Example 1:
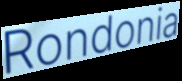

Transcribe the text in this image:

Rondonia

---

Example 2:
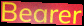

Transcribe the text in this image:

Bearer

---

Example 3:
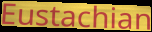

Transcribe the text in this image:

Eustachian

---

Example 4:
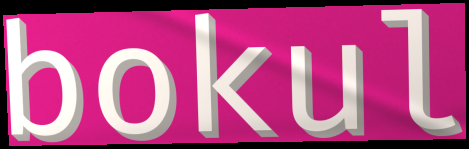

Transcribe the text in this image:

bokul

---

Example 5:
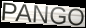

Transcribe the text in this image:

PANGO